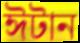
ঈটান